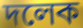
দলেক